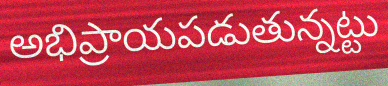
అభిప్రాయపడుతున్నట్టు